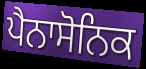
ਪੈਨਾਸੋਨਿਕ